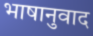
भाषानुवाद